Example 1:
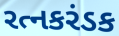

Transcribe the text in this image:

રત્નકરંડક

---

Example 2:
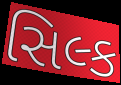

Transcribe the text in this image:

સિલ્ક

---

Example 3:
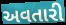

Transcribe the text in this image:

અવતારી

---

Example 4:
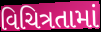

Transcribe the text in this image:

વિચિત્રતામાં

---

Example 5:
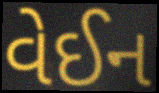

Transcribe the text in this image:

વેઈન